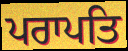
ਪਰਾਪਤਿ